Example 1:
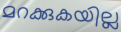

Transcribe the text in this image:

മറക്കുകയില്ല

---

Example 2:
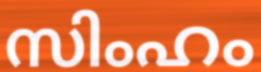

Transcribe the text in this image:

സിംഹം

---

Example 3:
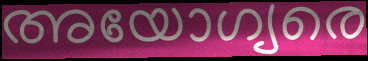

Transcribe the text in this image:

അയോഗ്യരെ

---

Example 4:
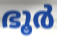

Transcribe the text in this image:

ഭൂർ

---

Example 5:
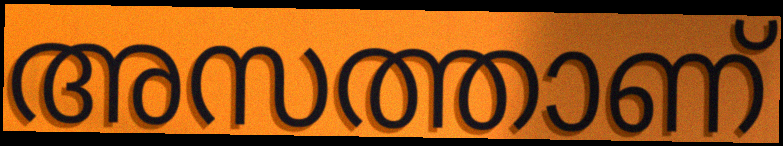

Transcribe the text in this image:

അസത്താണ്